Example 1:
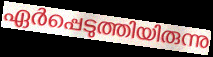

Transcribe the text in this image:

ഏർപ്പെടുത്തിയിരുന്നു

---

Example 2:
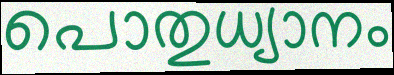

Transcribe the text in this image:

പൊതുധ്യാനം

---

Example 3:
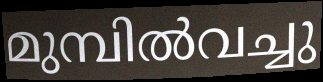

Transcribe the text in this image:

മുമ്പിൽവച്ചു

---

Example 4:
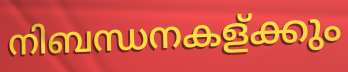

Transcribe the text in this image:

നിബന്ധനകള്ക്കും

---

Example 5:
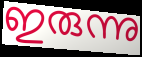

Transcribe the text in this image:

ഇരുന്നു